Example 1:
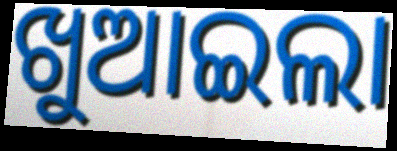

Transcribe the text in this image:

ଖୁଆଇଲା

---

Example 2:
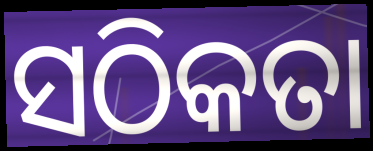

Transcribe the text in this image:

ସଠିକତା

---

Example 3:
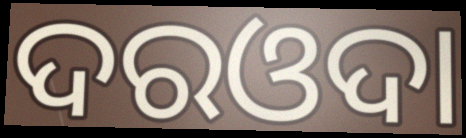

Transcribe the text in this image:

ଦରଓଦା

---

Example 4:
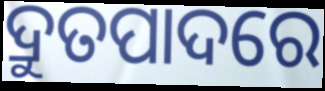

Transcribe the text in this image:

ଦ୍ରୁତପାଦରେ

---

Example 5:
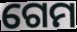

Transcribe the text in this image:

ଗେମ